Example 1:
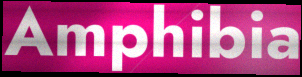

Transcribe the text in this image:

Amphibia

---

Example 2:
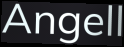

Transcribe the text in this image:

Angell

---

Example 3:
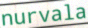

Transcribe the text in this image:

nurvala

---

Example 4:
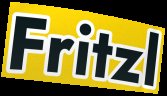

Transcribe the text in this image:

Fritzl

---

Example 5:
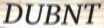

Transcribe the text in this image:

DUBNT